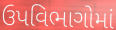
ઉપવિભાગોમાં